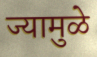
ज्यामुळे